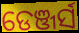
ଡେଞ୍ଜର୍ସ